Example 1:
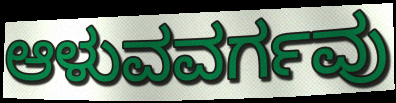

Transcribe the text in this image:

ಆಳುವವರ್ಗವು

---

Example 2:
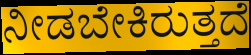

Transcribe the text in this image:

ನೀಡಬೇಕಿರುತ್ತದೆ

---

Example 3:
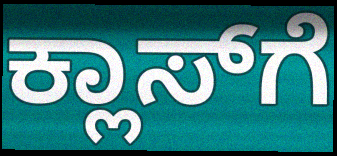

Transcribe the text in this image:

ಕ್ಲಾಸ್‌ಗೆ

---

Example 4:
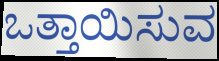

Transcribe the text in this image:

ಒತ್ತಾಯಿಸುವ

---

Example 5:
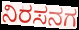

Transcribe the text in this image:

ನಿರಸನಗ